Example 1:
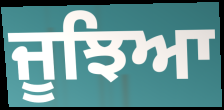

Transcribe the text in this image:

ਜੂਝਿਆ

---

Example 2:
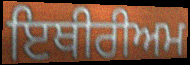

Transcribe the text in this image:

ਇਥੀਰੀਅਮ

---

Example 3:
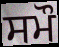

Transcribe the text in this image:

ਸਮੌ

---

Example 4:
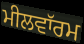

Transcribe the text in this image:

ਮੀਲਵਾੱਰਮ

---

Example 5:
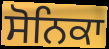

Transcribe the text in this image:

ਸੋਨਿਕਾ